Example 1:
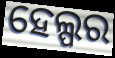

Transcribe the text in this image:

ହେଲ୍ପର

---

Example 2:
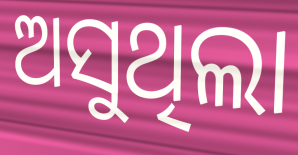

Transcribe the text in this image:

ଅସୁଥିଲା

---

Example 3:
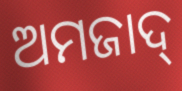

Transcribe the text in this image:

ଅମଜାଦ୍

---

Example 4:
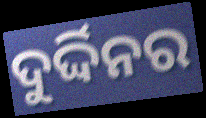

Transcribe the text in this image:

ଦୁର୍ଦ୍ଦିନର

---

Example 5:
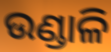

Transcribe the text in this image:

ଉଣ୍ଡାଳି